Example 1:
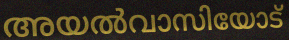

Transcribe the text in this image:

അയൽവാസിയോട്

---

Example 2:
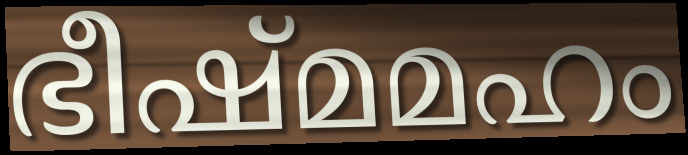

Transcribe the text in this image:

ഭീഷ്മമഹം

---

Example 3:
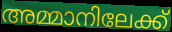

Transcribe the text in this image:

അമ്മാനിലേക്ക്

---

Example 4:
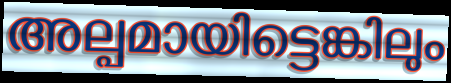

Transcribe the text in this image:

അല്പമായിട്ടെങ്കിലും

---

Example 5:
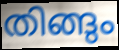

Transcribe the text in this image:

തിങ്ങും